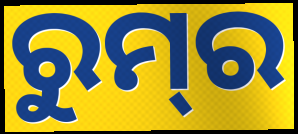
ରୁମ୍‍ର